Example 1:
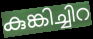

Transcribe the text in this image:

കുങ്കിച്ചിറ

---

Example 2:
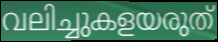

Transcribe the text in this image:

വലിച്ചുകളയരുത്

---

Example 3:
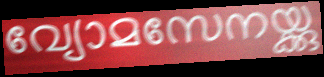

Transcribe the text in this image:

വ്യോമസേനയ്ക്കു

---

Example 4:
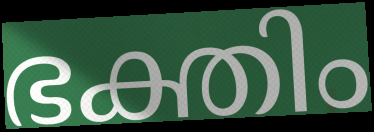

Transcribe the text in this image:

ഭക്തിം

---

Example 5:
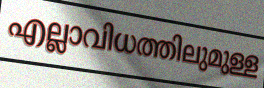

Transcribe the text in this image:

എല്ലാവിധത്തിലുമുള്ള